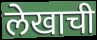
लेखाची